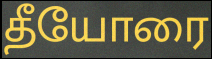
தீயோரை